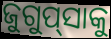
ଜୁଗୁପ୍‍ସାକୁ